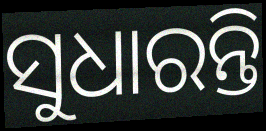
ସୁଧାରନ୍ତି